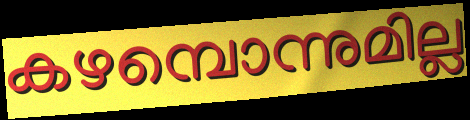
കഴമ്പൊന്നുമില്ല